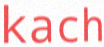
kach